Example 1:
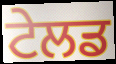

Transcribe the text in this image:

ਟੇਲਡ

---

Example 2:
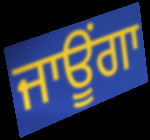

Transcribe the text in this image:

ਜਾਊਂਗਾ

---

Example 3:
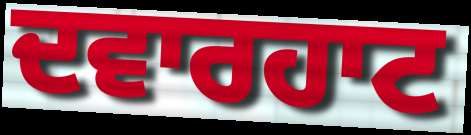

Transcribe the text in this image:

ਦਵਾਰਹਾਟ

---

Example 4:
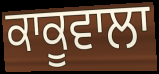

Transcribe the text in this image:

ਕਾਕੂਵਾਲਾ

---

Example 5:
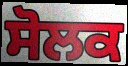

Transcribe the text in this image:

ਸੋਲਕ